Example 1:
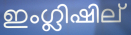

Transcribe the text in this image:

ഇംഗ്ലിഷില്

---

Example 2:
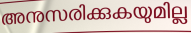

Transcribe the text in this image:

അനുസരിക്കുകയുമില്ല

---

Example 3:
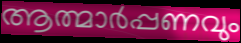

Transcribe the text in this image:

ആത്മാർപ്പണവും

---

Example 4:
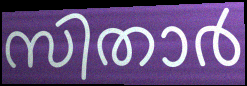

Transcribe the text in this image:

സിതാർ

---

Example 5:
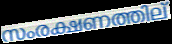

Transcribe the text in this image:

സംരക്ഷണത്തില്